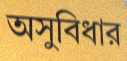
অসুবিধার